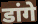
डांगे